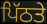
ਪਿੱਠਤੇ